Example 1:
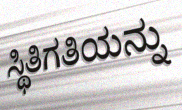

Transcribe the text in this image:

ಸ್ಥಿತಿಗತಿಯನ್ನು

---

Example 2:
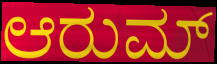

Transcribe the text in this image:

ಆರುಮ್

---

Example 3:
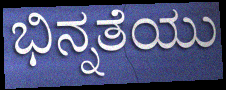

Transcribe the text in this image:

ಭಿನ್ನತೆಯು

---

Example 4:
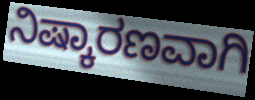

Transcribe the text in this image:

ನಿಷ್ಕಾರಣವಾಗಿ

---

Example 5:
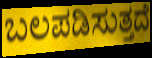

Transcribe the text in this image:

ಬಲಪಡಿಸುತ್ತದೆ